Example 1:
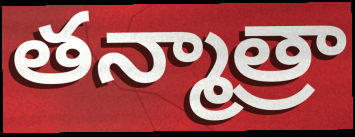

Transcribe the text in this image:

తన్మాత్రా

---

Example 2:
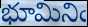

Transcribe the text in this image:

భూమినిఁ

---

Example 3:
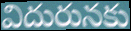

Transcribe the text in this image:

విదురునకు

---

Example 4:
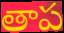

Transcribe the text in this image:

తాప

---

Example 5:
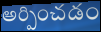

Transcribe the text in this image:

అర్పించడం